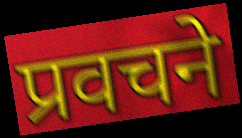
प्रवचने